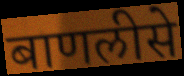
बाणलीसे